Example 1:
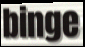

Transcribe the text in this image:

binge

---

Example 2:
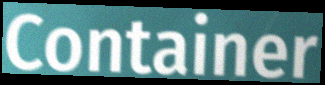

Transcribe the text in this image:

Container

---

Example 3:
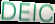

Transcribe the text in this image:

DEIC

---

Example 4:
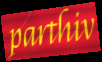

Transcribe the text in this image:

parthiv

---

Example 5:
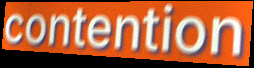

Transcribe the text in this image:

contention